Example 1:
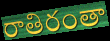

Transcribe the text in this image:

రాతిరంతా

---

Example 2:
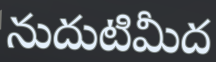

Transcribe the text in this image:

నుదుటిమీద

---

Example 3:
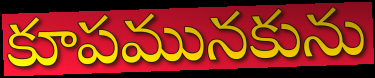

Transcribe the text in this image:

కూపమునకును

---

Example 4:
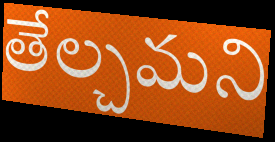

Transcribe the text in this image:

తేల్చమని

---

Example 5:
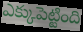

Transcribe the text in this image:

ఎక్కుపెట్టింది